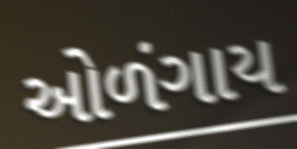
ઓળંગાય